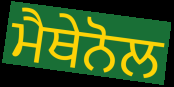
ਮੈਥੇਨੋਲ